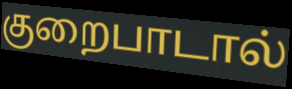
குறைபாடால்